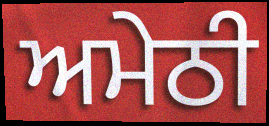
ਅਮੇਠੀ